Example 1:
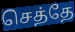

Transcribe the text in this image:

செத்தே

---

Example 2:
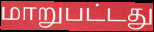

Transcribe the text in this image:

மாறுபட்டது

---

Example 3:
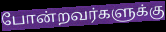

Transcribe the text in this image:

போன்றவர்களுக்கு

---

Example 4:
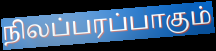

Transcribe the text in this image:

நிலப்பரப்பாகும்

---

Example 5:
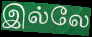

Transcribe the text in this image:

இல்லே